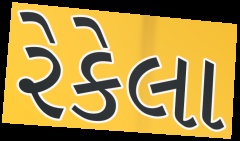
રેકેલા